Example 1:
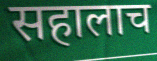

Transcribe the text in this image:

सहालाच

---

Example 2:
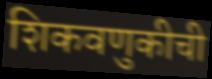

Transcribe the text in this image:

शिकवणुकीची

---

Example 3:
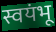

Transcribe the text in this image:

स्वयंभू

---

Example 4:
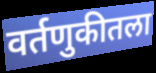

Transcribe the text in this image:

वर्तणुकीतला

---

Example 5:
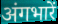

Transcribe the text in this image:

अंगभारें